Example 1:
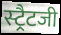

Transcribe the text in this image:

स्‍ट्रैटजी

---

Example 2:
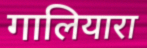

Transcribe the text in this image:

गालियारा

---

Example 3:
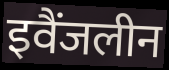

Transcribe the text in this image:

इवैंजलीन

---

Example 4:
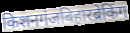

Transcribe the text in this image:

किशनगंजबिहारब्रेकिंग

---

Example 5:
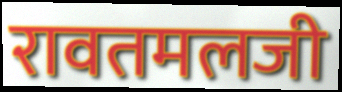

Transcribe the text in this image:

रावतमलजी